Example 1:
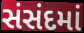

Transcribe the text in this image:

સંસંદમાં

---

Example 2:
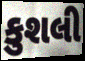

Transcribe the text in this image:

કુશલી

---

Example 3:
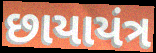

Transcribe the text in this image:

છાયાયંત્ર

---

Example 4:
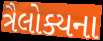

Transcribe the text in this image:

ત્રૈલોક્યના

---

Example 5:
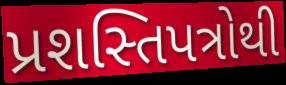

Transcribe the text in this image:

પ્રશસ્તિપત્રોથી